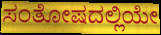
ಸಂತೋಷದಲ್ಲಿಯೇ